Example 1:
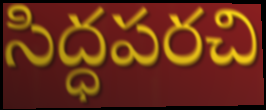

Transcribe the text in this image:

సిద్ధపరచి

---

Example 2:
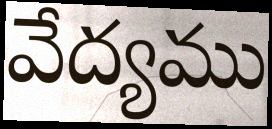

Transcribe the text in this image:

వేద్యము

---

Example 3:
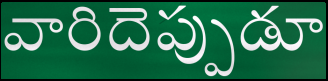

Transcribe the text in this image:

వారిదెప్పుడూ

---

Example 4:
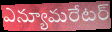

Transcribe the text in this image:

ఎన్యూమరేటర్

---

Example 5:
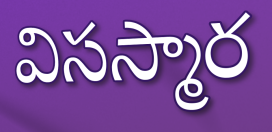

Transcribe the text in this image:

విసస్మార